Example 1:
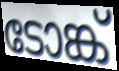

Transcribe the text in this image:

ടോങ്ക്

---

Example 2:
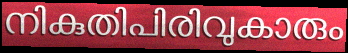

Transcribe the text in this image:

നികുതിപിരിവുകാരും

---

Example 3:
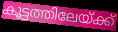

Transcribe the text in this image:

കൂട്ടത്തിലേയ്ക്ക്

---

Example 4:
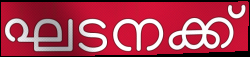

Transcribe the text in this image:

ഘടനക്ക്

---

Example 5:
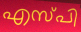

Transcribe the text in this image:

എസ്പി